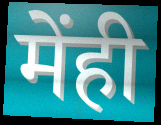
मेंही